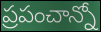
ప్రపంచాన్నో